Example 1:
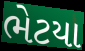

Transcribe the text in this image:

ભેટયા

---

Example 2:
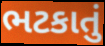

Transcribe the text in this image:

ભટકાતું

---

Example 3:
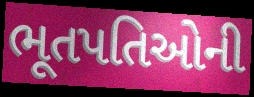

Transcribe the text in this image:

ભૂતપતિઓની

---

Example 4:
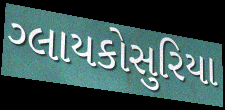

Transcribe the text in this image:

ગ્લાયકોસુરિયા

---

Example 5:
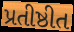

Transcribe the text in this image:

પ્રતીષ્ઠીત